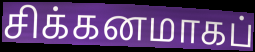
சிக்கனமாகப்